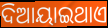
ଦିଆୟାଇଥାଏ